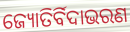
ଜ୍ୟୋତିର୍ବିଦାଭରଣ